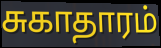
சுகாதாரம்